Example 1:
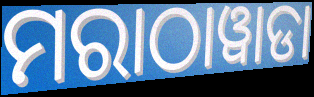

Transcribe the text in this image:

ମରାଠାୱାଡା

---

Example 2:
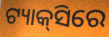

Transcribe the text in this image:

ଟ୍ୟାକ୍‍ସିରେ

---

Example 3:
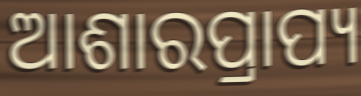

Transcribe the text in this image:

ଆଶାରପ୍ରାପ୍ୟ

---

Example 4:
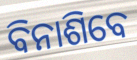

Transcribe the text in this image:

ବିନାଶିବେ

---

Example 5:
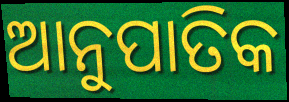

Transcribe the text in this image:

ଆନୁପାତିକ